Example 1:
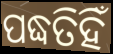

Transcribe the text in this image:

ପଦ୍ଧତିହିଁ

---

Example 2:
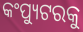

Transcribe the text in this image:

କଂପ୍ୟୁଟରକୁ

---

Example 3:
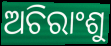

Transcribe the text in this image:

ଅଚିରାଂଶୁ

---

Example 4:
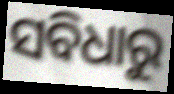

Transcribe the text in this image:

ସବିଧାରୁ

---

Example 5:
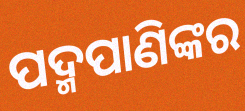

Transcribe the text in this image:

ପଦ୍ମପାଣିଙ୍କର